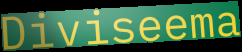
Diviseema